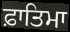
ਫ਼ਾਤਿਮਾ